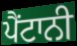
ਪੈਂਟਾਨੀ